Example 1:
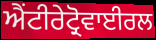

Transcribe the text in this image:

ਐਂਟੀਰੇਟ੍ਰੋਵਾਈਰਲ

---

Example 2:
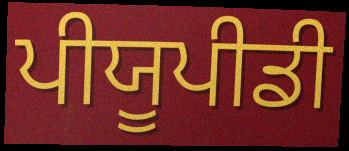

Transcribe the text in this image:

ਪੀਯੂਪੀਡੀ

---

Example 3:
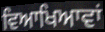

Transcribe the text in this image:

ਵਿਆਖਿਆਵਾਂ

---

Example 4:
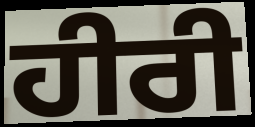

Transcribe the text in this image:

ਹੀਰੀ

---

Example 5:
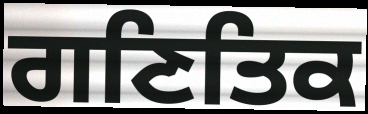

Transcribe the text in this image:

ਗਣਿਤਿਕ